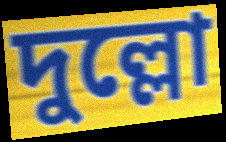
দুল্লো